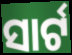
ସାର୍ଟ